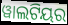
ୱାଲଟିୟର